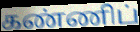
கண்ணிப்